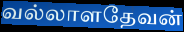
வல்லாளதேவன்